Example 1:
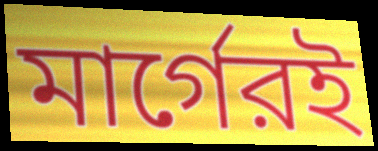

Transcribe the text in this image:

মার্গেরই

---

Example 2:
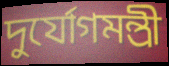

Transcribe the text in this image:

দুর্যোগমন্ত্রী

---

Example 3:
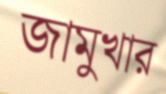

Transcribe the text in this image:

জামুখার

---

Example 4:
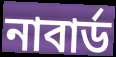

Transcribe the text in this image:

নাবার্ড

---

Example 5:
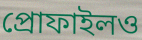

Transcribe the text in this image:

প্রোফাইলও